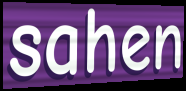
sahen